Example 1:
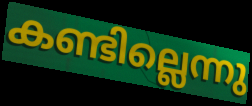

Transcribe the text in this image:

കണ്ടില്ലെന്നു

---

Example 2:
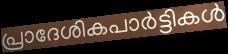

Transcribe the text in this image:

പ്രാദേശികപാർട്ടികൾ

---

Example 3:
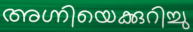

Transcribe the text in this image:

അഗ്നിയെക്കുറിച്ചു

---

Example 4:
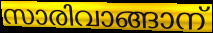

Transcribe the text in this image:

സാരിവാങ്ങാന്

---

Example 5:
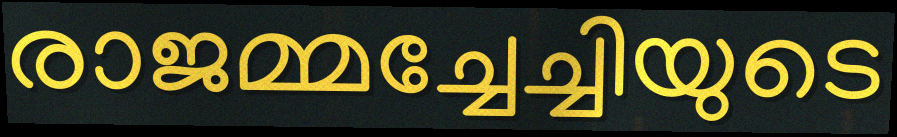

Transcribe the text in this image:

രാജമ്മച്ചേച്ചിയുടെ